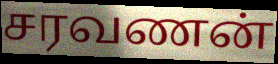
சரவணன்